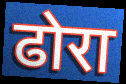
ढोरा